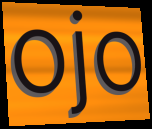
ojo